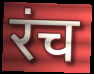
रंच